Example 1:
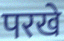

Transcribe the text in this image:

परखे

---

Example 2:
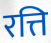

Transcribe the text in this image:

रत्ति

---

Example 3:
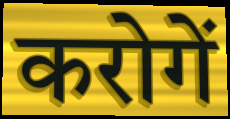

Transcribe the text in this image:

करोगें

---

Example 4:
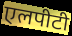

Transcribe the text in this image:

एलपीटी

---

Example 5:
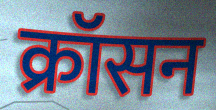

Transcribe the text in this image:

क्रॉसन